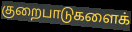
குறைபாடுகளைக்